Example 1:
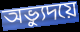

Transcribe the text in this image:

অভ্যুদয়ে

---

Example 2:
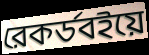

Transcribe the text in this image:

রেকর্ডবইয়ে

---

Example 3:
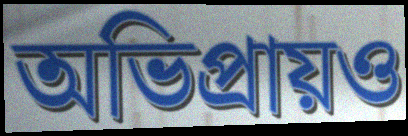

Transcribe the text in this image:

অভিপ্রায়ও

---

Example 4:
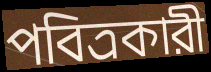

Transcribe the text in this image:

পবিত্রকারী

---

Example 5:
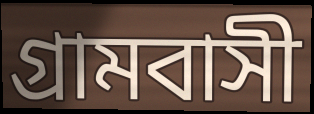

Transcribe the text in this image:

গ্রামবাসী